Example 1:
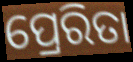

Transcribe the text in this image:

ପ୍ରେରିତା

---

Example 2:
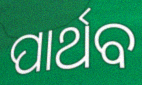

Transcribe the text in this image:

ପାର୍ଥବ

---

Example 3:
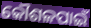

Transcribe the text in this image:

କୌଶଳପାଇଁ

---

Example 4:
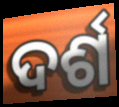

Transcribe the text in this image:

ଦର୍ଶ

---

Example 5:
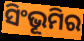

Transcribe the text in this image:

ସିଂଭୂମିର